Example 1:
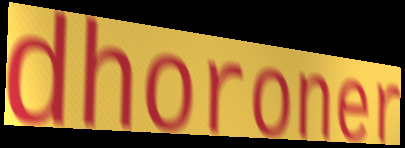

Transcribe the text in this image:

dhoroner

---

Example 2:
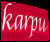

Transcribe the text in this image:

karpu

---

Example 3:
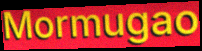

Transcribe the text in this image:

Mormugao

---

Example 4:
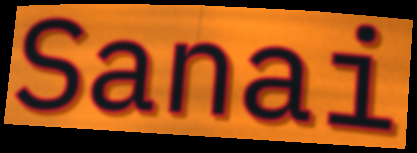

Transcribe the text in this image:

Sanai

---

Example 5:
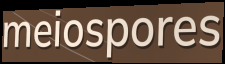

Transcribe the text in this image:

meiospores